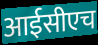
आईसीएच